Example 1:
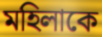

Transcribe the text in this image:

মহিলাকে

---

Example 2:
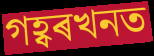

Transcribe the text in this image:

গহ্বৰখনত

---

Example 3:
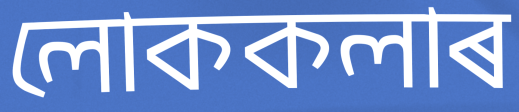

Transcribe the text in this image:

লোককলাৰ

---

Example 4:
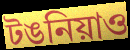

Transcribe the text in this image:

টঙনিয়াও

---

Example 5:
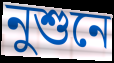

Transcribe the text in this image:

নুশুনে